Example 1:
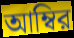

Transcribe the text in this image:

আম্বির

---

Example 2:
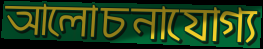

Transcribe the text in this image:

আলোচনাযোগ্য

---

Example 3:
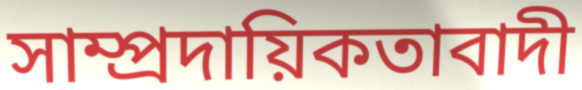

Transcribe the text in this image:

সাম্প্রদায়িকতাবাদী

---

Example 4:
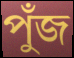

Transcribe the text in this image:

পুঁজ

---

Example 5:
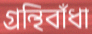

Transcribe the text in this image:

গ্রন্থিবাঁধা